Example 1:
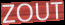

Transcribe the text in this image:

ZOUT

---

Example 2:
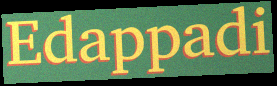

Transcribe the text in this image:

Edappadi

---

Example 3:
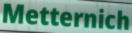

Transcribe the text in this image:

Metternich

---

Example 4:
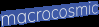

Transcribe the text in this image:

macrocosmic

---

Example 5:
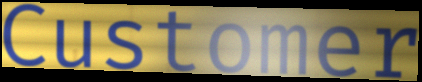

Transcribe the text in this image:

Customer